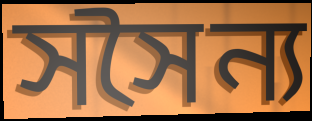
সসৈন্য